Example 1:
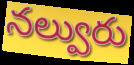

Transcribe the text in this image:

నల్వురు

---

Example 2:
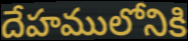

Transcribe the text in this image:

దేహములోనికి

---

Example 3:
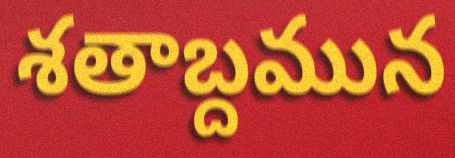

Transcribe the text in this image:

శతాబ్దమున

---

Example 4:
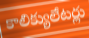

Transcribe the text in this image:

కాలిక్యులేటర్లు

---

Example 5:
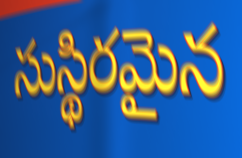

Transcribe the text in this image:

సుస్థిరమైన